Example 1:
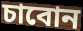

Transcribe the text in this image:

চাবোন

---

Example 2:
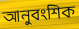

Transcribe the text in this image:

আনুবংশিক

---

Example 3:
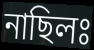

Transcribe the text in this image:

নাছিলঃ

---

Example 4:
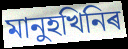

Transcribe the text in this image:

মানুহখিনিৰ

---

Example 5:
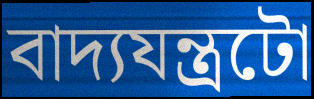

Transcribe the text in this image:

বাদ্যযন্ত্ৰটো